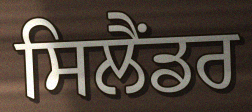
ਸਿਲੈਂਡਰ